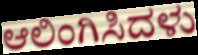
ಆಲಿಂಗಿಸಿದಳು